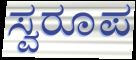
ಸ್ವರೂಪ